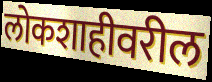
लोकशाहीवरील